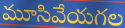
మూసివేయగల